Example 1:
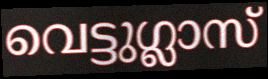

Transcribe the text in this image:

വെട്ടുഗ്ലാസ്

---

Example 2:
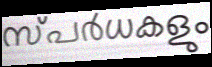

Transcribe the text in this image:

സ്പർധകളും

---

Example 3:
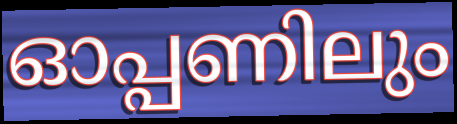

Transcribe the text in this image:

ഓപ്പണിലും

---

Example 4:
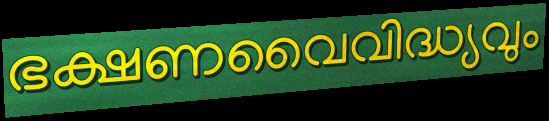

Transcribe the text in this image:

ഭക്ഷണവൈവിദ്ധ്യവും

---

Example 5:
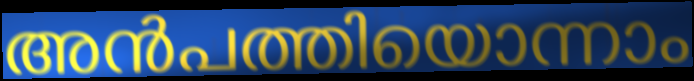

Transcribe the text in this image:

അൻപത്തിയൊന്നാം